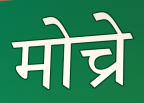
मोच्रे